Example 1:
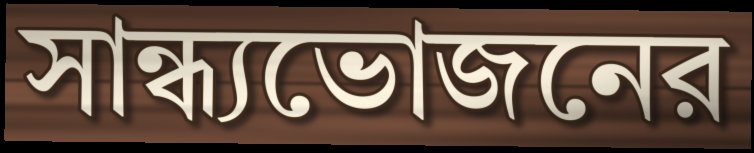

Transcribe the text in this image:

সান্ধ্যভোজনের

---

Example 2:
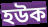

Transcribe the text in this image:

হউক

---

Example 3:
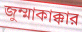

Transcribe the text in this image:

জুম্মাকাক্কার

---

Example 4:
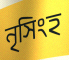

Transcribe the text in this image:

নৃসিংহ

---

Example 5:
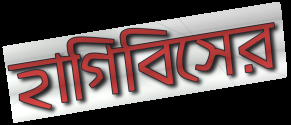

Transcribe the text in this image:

হাগিবিসের